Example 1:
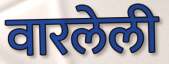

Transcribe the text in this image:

वारलेली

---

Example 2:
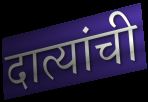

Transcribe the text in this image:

दात्यांची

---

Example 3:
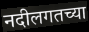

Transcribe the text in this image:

नदीलगतच्या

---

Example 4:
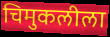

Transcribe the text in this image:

चिमुकलीला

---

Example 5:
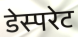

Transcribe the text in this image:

डेस्परेट